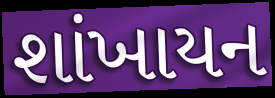
શાંખાયન